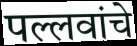
पल्लवांचे